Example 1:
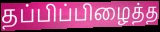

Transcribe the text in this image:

தப்பிப்பிழைத்த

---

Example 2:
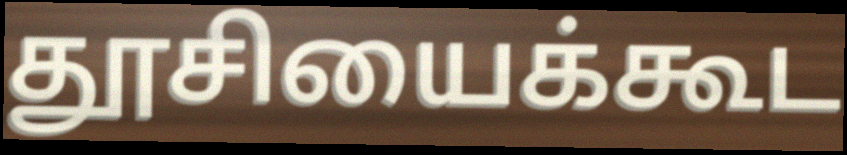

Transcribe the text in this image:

தூசியைக்கூட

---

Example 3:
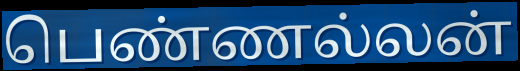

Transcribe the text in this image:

பெண்ணல்லன்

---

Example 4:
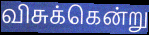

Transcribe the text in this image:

விசுக்கென்று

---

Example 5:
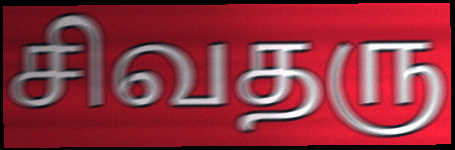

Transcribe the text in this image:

சிவதரு